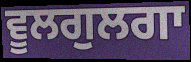
ਵੂਲਗੁਲਗਾ